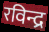
रविन्द्र